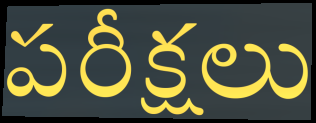
పరీక్షలు